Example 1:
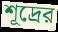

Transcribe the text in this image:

শূদ্রের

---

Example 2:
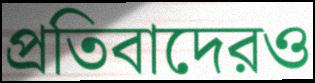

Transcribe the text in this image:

প্রতিবাদেরও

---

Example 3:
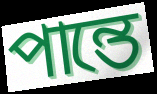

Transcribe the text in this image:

পান্তে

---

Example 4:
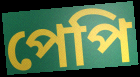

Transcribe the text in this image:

পেপি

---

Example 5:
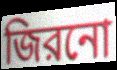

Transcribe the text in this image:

জিরনো